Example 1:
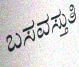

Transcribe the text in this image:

ಬಸವಸ್ತುತಿ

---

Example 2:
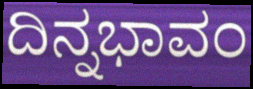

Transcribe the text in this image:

ದಿನ್ನಭಾವಂ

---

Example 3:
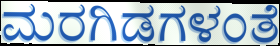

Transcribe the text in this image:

ಮರಗಿಡಗಳಂತೆ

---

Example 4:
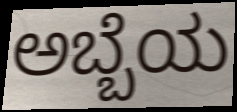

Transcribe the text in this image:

ಅಬ್ಬೆಯ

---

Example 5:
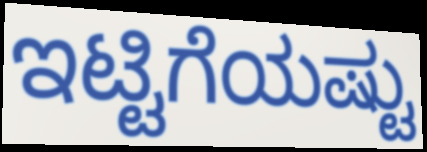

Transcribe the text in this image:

ಇಟ್ಟಿಗೆಯಷ್ಟು